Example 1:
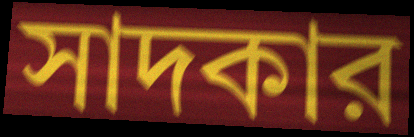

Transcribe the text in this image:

সাদকার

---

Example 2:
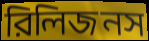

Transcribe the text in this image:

রিলিজনস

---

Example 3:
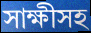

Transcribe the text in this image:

সাক্ষীসহ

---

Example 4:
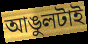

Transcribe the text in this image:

আঙুলটাই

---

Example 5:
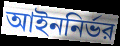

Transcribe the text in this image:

আইননির্ভর